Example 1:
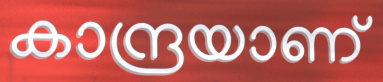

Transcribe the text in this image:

കാന്ദ്രയാണ്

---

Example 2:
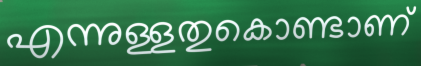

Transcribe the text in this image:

എന്നുള്ളതുകൊണ്ടാണ്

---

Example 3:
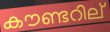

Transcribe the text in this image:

കൗണ്ടറില്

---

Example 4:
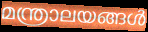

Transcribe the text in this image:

മന്ത്രാലയങ്ങൾ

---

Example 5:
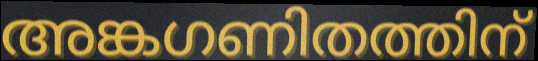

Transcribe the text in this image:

അങ്കഗണിതത്തിന്